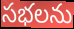
సభలను